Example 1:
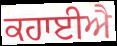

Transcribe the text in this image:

ਕਹਾਈਐ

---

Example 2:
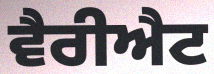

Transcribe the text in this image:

ਵੈਰੀਐਟ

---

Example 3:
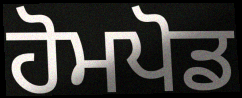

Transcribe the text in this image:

ਹੋਮਪੋਡ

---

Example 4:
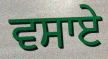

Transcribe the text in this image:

ਵਸਾਏ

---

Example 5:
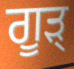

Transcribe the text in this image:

ਗੂੜ੍